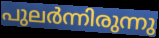
പുലർന്നിരുന്നു